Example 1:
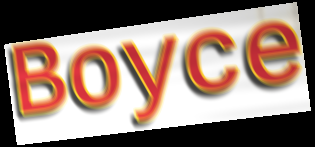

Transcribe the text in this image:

Boyce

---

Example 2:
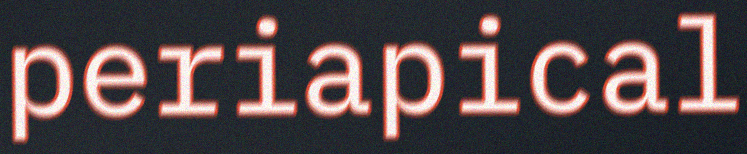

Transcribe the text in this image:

periapical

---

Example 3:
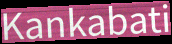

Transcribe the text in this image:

Kankabati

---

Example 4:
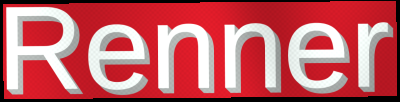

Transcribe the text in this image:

Renner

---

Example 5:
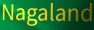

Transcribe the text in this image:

Nagaland